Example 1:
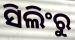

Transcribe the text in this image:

ସିଲିଂରୁ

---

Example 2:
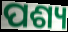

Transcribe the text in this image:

ପଶ୍ୟ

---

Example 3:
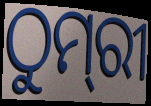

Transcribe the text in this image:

ଠୁମ୍‌ରୀ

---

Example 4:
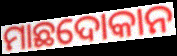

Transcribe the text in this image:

ମାଛଦୋକାନ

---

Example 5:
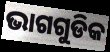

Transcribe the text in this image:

ଭାଗଗୁଡିକ